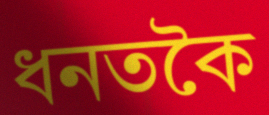
ধনতকৈ